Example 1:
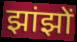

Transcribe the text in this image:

झांझों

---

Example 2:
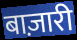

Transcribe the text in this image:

बाज़ारी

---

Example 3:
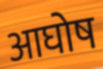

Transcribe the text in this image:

आघोष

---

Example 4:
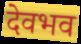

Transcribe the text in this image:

देवभव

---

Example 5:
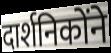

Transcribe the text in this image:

दार्शनिकोंने